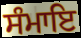
ਸੰਮਾਇ